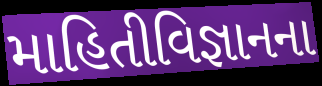
માહિતીવિજ્ઞાનના